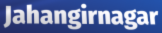
Jahangirnagar